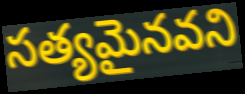
సత్యమైనవని